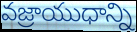
వజ్రాయుధాన్ని